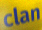
clan